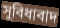
সুবিধাবাদ